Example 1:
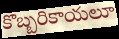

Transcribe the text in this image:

కొబ్బరికాయలూ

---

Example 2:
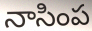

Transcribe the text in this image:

నాసింప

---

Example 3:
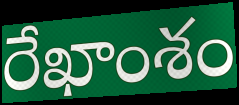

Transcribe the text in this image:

రేఖాంశం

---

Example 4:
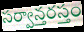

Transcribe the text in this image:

సర్వాన్తరస్తం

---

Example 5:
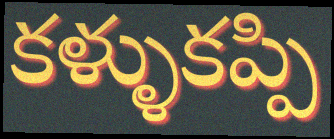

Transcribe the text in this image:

కళ్ళుకప్పి